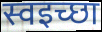
स्वइच्छा